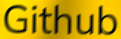
Github